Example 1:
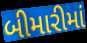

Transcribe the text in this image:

બીમારીમાં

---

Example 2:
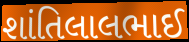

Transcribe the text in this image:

શાંતિલાલભાઈ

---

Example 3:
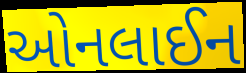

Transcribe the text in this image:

ઓનલાઈન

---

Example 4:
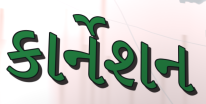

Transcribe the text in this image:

કાર્નેશન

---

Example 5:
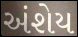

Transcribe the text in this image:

અંશેય